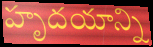
హృదయాన్ని